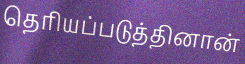
தெரியப்படுத்தினான்